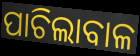
ପାଚିଲାବାଳ